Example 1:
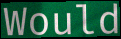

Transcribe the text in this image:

Would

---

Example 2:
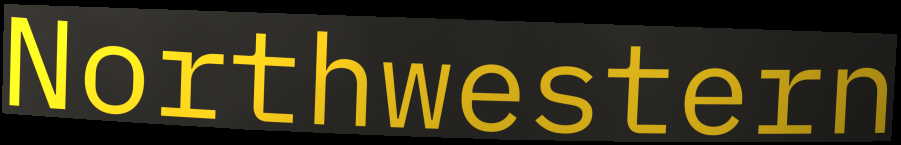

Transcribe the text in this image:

Northwestern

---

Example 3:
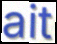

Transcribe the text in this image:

ait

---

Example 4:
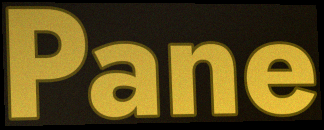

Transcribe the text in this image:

Pane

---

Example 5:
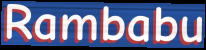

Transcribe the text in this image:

Rambabu